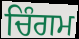
ਚਿੰਗਮ